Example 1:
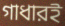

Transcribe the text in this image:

গাধারই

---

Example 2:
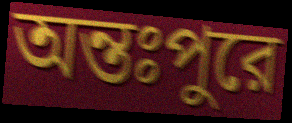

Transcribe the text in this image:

অন্তঃপুরে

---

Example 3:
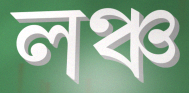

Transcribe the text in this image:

লঞ্চ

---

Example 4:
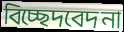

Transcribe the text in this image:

বিচ্ছেদবেদনা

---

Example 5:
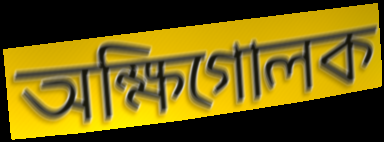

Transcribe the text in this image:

অক্ষিগোলক